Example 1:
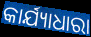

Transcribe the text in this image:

କାର୍ଯ୍ୟାଧାରା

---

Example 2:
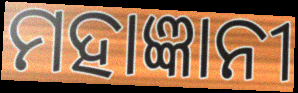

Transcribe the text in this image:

ମହାଜ୍ଞାନୀ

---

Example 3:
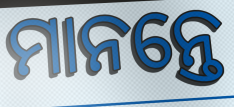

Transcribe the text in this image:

ମାନନ୍ତେ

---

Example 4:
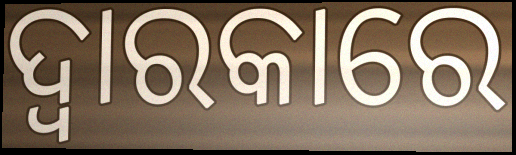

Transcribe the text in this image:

ଦ୍ବାରକାରେ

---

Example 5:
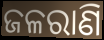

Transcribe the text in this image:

ଜଳରାଣି